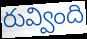
రువ్వింది